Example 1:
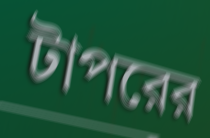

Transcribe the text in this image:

টাপরের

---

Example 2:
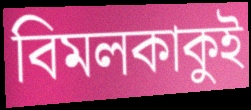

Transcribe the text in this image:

বিমলকাকুই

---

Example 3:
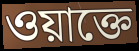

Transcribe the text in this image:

ওয়াক্তে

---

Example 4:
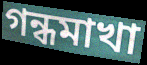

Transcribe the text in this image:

গন্ধমাখা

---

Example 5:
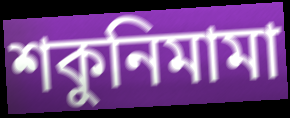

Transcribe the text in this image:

শকুনিমামা